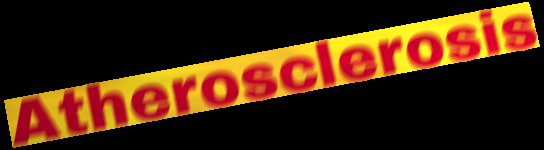
Atherosclerosis